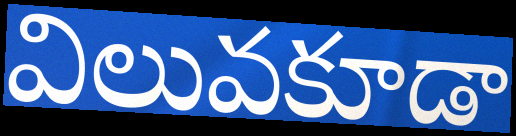
విలువకూడా